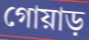
গোয়াড়